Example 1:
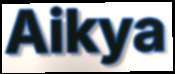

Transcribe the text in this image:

Aikya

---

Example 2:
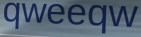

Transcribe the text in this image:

qweeqw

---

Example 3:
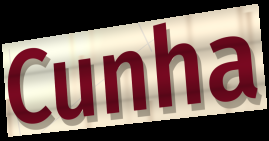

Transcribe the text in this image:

Cunha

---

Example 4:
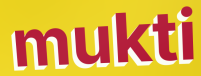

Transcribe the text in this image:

mukti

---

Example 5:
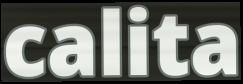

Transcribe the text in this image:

calita